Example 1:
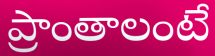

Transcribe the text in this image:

ప్రాంతాలంటే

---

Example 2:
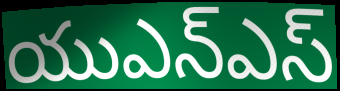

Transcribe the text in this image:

యుఎన్ఎస్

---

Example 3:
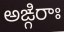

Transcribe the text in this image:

అఙ్గిరాః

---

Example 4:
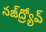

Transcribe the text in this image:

నజ్‌ద్ర్యోవ్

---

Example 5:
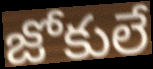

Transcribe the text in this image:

జోకులే